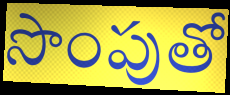
సొంపుతో